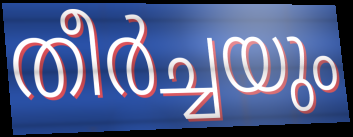
തീർച്ചയും